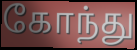
கோந்து